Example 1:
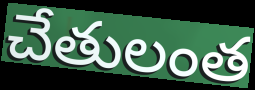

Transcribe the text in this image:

చేతులంత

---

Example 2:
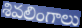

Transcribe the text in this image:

శివలింగాలు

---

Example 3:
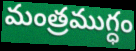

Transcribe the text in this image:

మంత్రముగ్ధం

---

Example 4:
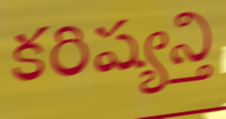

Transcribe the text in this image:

కరిష్యన్తి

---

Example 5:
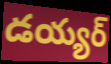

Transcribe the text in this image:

డయ్యర్